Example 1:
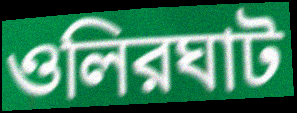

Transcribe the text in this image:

ওলিরঘাট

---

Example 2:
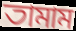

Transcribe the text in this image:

তামাম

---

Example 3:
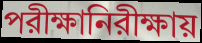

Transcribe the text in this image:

পরীক্ষানিরীক্ষায়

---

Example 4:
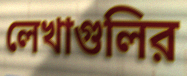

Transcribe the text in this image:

লেখাগুলির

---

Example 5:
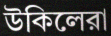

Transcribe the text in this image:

উকিলেরা